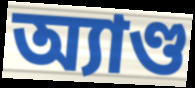
অ্যাণ্ড